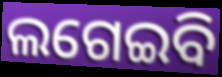
ଲଗେଇବି